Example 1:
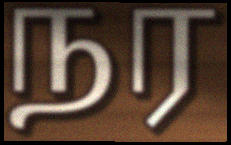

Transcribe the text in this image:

நர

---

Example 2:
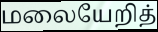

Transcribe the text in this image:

மலையேறித்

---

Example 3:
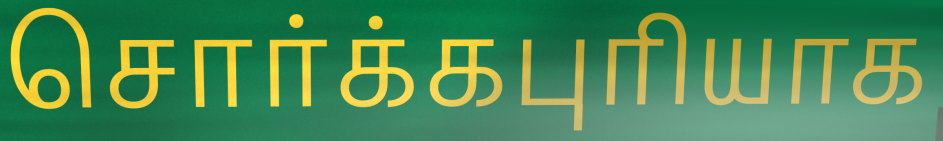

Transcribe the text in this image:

சொர்க்கபுரியாக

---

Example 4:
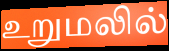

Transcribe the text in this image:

உறுமலில்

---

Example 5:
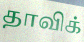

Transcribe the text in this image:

தாவிக்